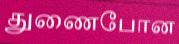
துணைபோன